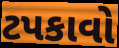
ટપકાવો